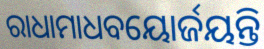
ରାଧାମାଧବୟୋର୍ଜୟନ୍ତି